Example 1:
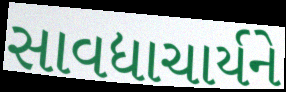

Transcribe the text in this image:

સાવદ્યાચાર્યને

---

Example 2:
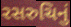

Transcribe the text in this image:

રસરુચિનું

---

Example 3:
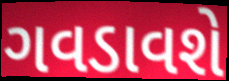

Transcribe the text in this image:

ગવડાવશે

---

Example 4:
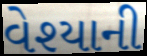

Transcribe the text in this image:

વેશ્યાની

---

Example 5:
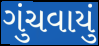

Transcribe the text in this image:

ગુંચવાયું